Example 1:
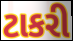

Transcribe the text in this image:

ટાકરી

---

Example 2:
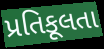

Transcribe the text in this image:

પ્રતિકૂલતા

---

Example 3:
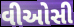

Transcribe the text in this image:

વીઓસી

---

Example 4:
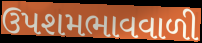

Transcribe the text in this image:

ઉપશમભાવવાળી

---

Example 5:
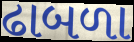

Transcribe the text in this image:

ઢાબળા